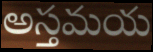
అస్తమయ